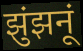
झुंझनूं